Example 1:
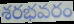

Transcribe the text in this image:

శరభవరం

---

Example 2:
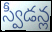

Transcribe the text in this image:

స్వీడన్ల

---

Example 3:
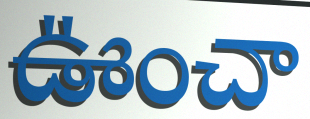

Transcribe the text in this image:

ఊంచా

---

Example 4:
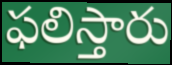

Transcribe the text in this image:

ఫలిస్తారు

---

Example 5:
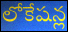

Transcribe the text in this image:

లోకేషన్ల